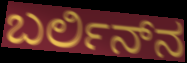
ಬರ್ಲಿನ್‍ನ